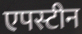
एपस्टीन